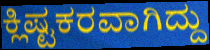
ಕ್ಲಿಷ್ಟಕರವಾಗಿದ್ದು